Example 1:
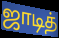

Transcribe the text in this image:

ஜாடித்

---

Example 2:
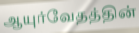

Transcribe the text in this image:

ஆயுர்வேதத்தின்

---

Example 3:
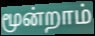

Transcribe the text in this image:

மூன்றாம்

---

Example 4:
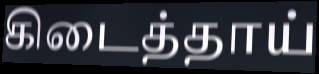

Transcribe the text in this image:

கிடைத்தாய்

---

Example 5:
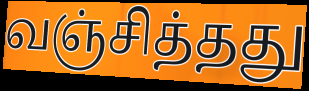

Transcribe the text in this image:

வஞ்சித்தது